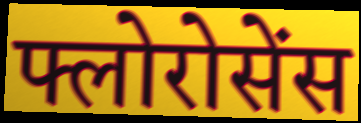
फ्लोरोसेंस